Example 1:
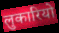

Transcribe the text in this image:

लुकारियो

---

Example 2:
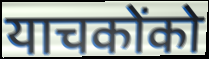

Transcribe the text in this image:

याचकोंको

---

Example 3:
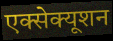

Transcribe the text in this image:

एक्सेक्यूशन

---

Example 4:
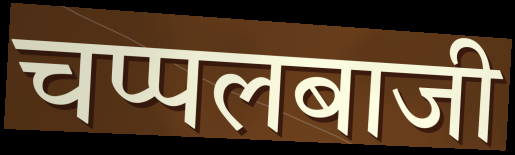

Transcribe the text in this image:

चप्पलबाजी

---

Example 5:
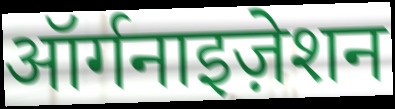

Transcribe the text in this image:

ऑर्गनाइज़ेशन